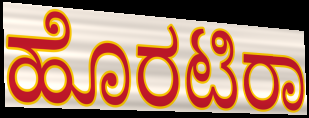
ಹೊರಟಿರಾ